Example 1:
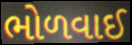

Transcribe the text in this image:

ભોળવાઈ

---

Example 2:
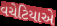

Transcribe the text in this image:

વચેટિયાએ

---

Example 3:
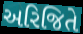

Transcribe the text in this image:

અરિજિતે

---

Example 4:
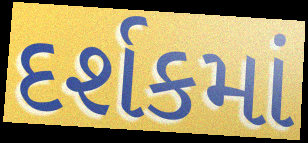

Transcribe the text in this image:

દર્શકમાં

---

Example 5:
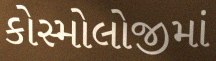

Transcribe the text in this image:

કોસ્મોલોજીમાં